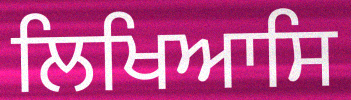
ਲਿਖਿਆਸਿ